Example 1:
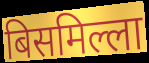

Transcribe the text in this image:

बिसमिल्ला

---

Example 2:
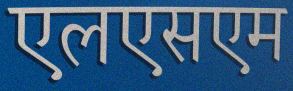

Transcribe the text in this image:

एलएसएम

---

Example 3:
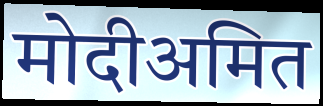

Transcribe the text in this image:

मोदीअमित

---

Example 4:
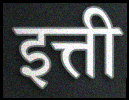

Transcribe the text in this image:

इत्ती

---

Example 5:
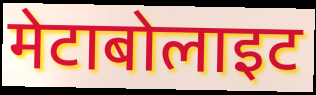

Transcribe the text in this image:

मेटाबोलाइट